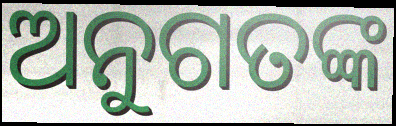
ଅନୁଗତଙ୍କ